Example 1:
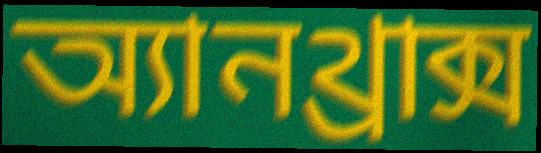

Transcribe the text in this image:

অ্যানথ্রাক্স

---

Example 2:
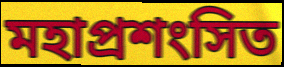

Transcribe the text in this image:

মহাপ্রশংসিত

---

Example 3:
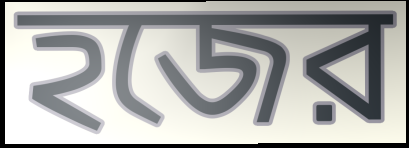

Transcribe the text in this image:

হজের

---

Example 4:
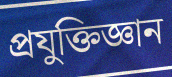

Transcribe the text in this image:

প্রযুক্তিজ্ঞান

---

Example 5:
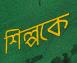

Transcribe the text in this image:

শিল্পকে